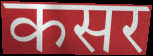
कसर